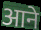
आने